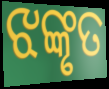
ଝଙ୍କୃତ